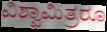
ವಿಶ್ವಾಮಿತ್ರರೂ